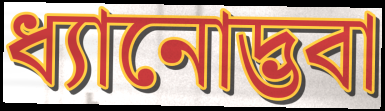
ধ্যানোদ্ভবা